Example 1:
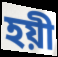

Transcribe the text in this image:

হয়ী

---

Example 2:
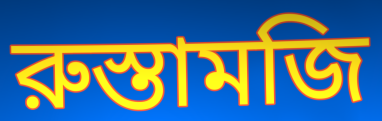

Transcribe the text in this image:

রুস্তামজি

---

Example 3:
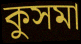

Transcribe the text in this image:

কুসমা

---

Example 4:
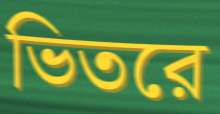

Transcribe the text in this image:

ভিতরে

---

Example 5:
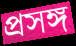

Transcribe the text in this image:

প্রসঙ্গ